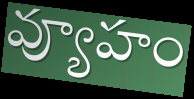
వ్యూహం